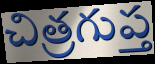
చిత్రగుప్త